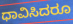
ಧಾವಿಸಿದರೂ